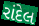
રાંદેલ